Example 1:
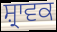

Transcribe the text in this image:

ਸ਼੍ਰਾਵਕ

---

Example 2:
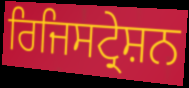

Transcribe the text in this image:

ਰਿਜਿਸਟ੍ਰੇਸ਼ਨ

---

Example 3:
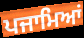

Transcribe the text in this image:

ਪਜਾਮਿਆਂ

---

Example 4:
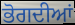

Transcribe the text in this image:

ਭੋਗਦੀਆਂ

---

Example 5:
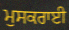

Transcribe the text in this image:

ਮੁਸਕਰਾਈ